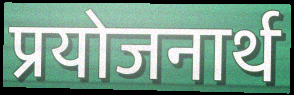
प्रयोजनार्थ